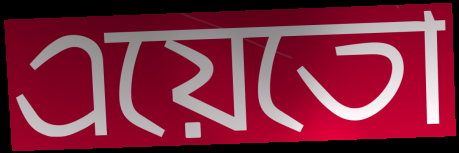
এয়েতো